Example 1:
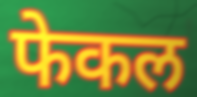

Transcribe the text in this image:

फेकल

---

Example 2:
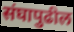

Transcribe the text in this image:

संघापुढील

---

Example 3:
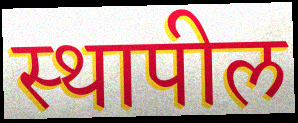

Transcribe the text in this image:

स्थापील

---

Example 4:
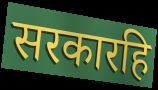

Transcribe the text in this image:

सरकारहि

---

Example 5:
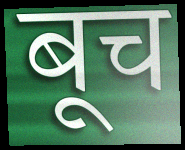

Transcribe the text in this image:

बूच